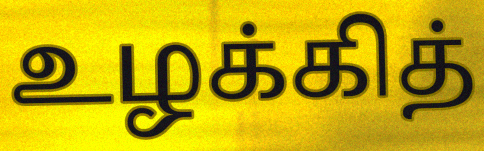
உழக்கித்